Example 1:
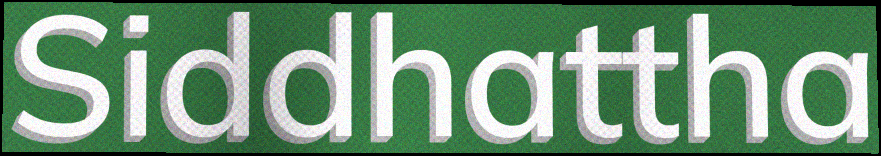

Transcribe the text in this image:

Siddhattha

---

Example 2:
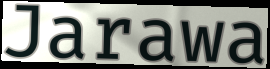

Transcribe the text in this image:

Jarawa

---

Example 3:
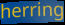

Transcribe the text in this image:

herring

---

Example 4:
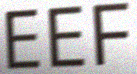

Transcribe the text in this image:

EEF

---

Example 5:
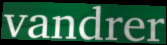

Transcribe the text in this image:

vandrer